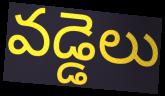
వడ్డెలు